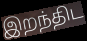
இறந்திட